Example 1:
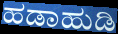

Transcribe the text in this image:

ಹಡಾಹುಡಿ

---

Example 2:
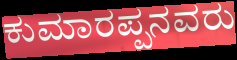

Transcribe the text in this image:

ಕುಮಾರಪ್ಪನವರು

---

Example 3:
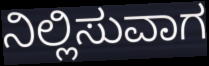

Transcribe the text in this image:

ನಿಲ್ಲಿಸುವಾಗ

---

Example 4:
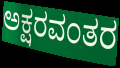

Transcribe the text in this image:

ಅಕ್ಷರವಂತರ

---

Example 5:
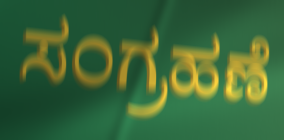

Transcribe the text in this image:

ಸಂಗ್ರಹಣೆ